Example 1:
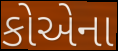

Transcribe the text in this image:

કોએના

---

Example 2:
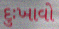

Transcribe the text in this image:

દુઃખાવો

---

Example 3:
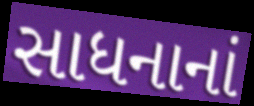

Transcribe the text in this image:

સાધનાનાં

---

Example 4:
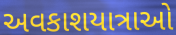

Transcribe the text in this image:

અવકાશયાત્રાઓ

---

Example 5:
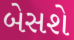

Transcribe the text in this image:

બેસશે